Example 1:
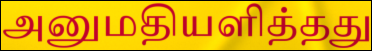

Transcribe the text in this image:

அனுமதியளித்தது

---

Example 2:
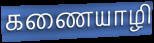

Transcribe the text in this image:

கணையாழி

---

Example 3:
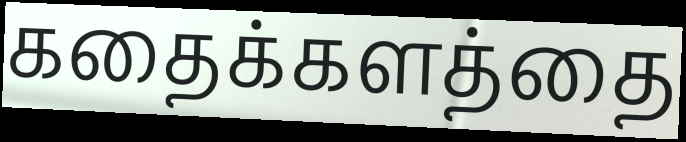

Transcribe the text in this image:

கதைக்களத்தை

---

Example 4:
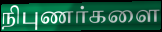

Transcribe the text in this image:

நிபுணர்களை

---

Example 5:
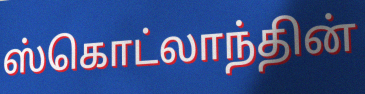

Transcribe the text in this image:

ஸ்கொட்லாந்தின்